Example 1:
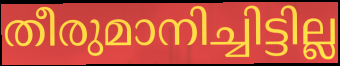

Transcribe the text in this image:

തീരുമാനിച്ചിട്ടില്ല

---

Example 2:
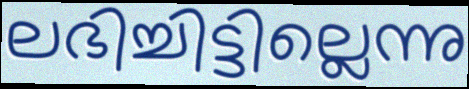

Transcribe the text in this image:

ലഭിച്ചിട്ടില്ലെന്നു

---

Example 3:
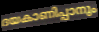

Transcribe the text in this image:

ദയകാണിപ്പാനും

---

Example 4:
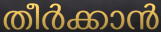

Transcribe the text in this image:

തീർക്കാൻ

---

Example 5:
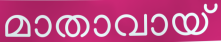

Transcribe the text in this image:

മാതാവായ്